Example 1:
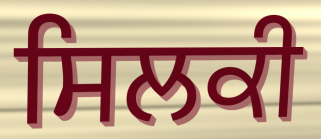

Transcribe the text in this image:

ਸਿਲਕੀ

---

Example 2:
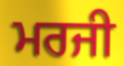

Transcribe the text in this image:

ਮਰਜੀ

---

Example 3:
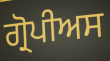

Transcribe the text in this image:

ਗ੍ਰੋਪੀਅਸ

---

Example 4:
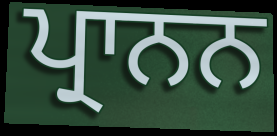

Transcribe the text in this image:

ਪ੍ਰਾਨਨ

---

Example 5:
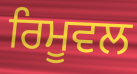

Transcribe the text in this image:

ਰਿਮੂਵਲ